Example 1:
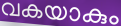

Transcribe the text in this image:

വകയാകും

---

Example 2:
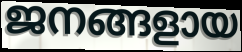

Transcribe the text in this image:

ജനങ്ങളായ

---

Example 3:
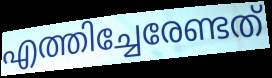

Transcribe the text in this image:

എത്തിച്ചേരേണ്ടത്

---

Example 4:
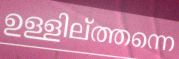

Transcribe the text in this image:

ഉള്ളില്ത്തന്നെ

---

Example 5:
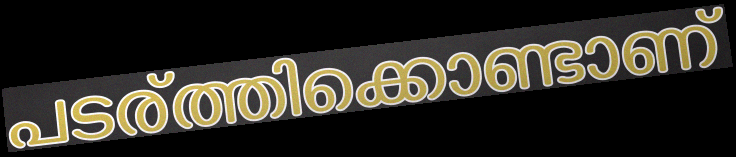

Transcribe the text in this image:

പടര്ത്തിക്കൊണ്ടാണ്